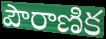
పౌరాణిక